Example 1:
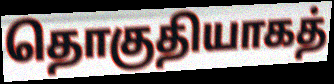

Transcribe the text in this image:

தொகுதியாகத்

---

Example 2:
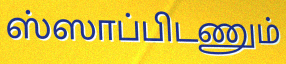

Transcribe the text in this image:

ஸ்ஸாப்பிடணும்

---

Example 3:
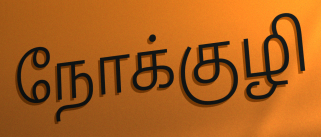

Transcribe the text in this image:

நோக்குழி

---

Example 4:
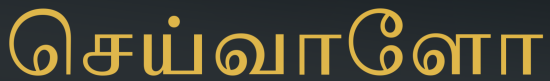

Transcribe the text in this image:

செய்வாளோ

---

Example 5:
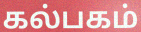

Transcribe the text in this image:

கல்பகம்